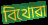
বিথোৱা